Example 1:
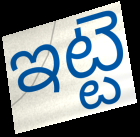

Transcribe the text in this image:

ఇట్టె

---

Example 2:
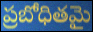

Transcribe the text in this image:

ప్రబోధితమై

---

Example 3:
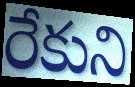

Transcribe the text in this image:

రేకుని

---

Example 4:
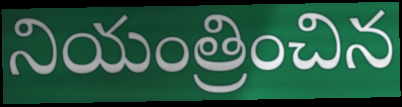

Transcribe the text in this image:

నియంత్రించిన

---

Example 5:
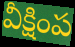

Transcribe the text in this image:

వీక్షింప